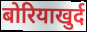
बोरियाखुर्द